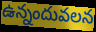
ఉన్నందువలన